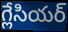
గ్లేసియర్